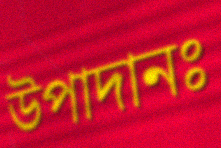
উপাদানঃ